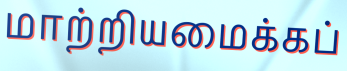
மாற்றியமைக்கப்